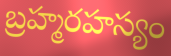
బ్రహ్మరహస్యం